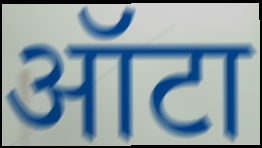
ऑटा